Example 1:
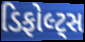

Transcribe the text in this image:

ડિફોલ્ટ્સ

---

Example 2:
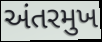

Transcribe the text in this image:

અંતરમુખ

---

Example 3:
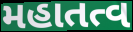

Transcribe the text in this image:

મહાતત્વ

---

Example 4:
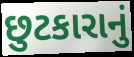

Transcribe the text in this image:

છુટકારાનું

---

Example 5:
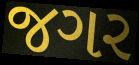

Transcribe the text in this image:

જગર